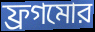
ফ্রগমোর